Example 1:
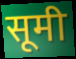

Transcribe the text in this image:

सूमी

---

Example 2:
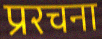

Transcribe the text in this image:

प्ररचना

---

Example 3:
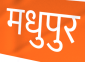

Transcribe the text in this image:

मधुपुर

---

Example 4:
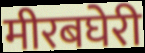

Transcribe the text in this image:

मीरबघेरी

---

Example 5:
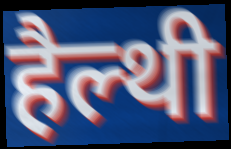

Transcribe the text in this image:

हैल्थी